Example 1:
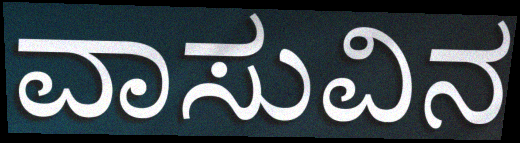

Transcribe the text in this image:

ವಾಸುವಿನ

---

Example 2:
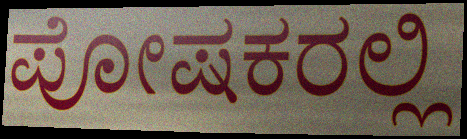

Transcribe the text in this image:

ಪೋಷಕರಲ್ಲಿ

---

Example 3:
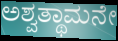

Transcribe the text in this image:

ಅಶ್ವತ್ಥಾಮನೇ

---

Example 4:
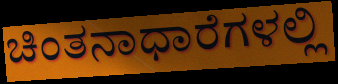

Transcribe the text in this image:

ಚಿಂತನಾಧಾರೆಗಳಲ್ಲಿ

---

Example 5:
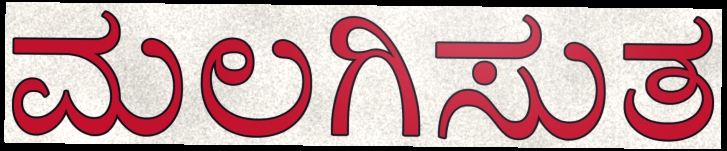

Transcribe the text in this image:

ಮಲಗಿಸುತ